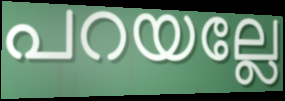
പറയല്ലേ